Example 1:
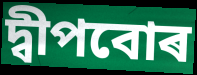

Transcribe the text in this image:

দ্বীপবোৰ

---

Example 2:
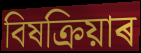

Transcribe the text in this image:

বিষক্ৰিয়াৰ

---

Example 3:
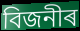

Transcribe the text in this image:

বিজনীৰ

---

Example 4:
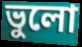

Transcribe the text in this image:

ভুলো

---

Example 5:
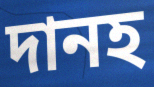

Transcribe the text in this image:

দানহ